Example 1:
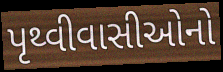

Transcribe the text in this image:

પૃથ્વીવાસીઓનો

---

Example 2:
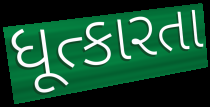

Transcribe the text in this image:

ધૂત્કારતા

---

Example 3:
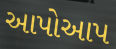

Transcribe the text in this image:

આપોઆપ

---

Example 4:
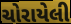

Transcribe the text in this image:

ચોરાયેલી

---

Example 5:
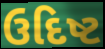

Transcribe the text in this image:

ઉદિષ્ટ